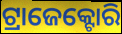
ଟ୍ରାଜେକ୍ଟୋରି